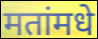
मतांमधे